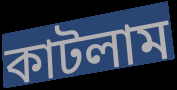
কাটলাম